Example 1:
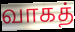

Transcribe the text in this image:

வாகத்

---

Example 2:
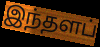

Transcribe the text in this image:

இந்தளப்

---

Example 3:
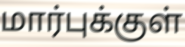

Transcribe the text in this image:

மார்புக்குள்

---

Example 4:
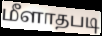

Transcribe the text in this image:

மீளாதபடி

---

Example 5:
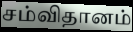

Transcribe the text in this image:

சம்விதானம்